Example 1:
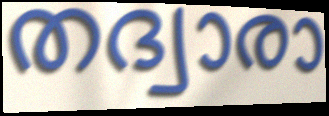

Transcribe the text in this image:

തദ്വാരാ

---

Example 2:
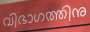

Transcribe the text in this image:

വിഭാഗത്തിനു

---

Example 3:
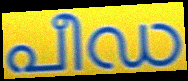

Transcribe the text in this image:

പീഡ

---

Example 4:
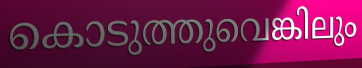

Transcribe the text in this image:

കൊടുത്തുവെങ്കിലും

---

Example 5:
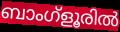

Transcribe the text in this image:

ബാംഗ്ളൂരിൽ